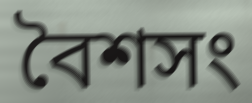
বৈশসং